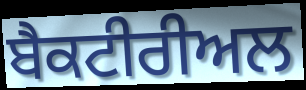
ਬੈਕਟੀਰੀਅਲ